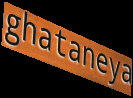
ghataneya